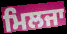
ਮਿਲਜਾ